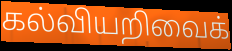
கல்வியறிவைக்